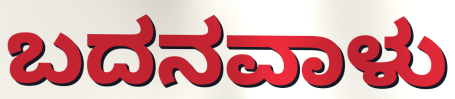
ಬದನವಾಳು